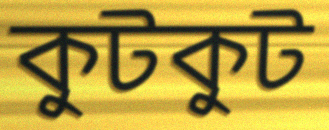
কুটকুট